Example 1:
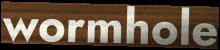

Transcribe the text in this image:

wormhole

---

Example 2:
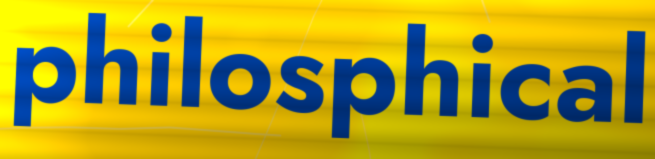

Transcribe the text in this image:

philosphical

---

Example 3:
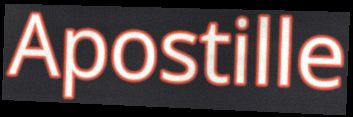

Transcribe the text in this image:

Apostille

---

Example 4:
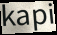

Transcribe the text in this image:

kapi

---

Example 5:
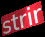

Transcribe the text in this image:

strir